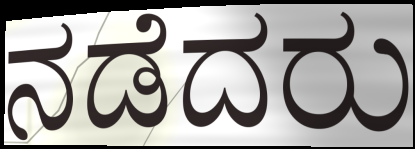
ನಡೆದರು